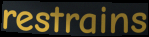
restrains